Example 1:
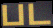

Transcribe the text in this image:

பட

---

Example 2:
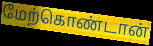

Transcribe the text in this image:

மேற்கொண்டான்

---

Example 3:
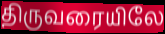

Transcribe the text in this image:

திருவரையிலே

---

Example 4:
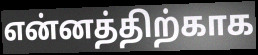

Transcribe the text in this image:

என்னத்திற்காக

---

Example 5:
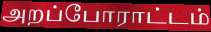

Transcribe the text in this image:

அறப்போராட்டம்